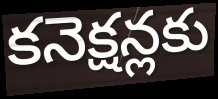
కనెక్షన్లకు